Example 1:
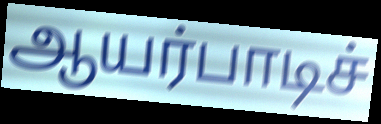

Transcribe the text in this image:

ஆயர்பாடிச்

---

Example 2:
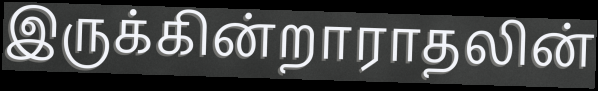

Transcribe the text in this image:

இருக்கின்றாராதலின்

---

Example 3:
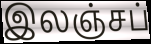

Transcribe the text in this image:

இலஞ்சப்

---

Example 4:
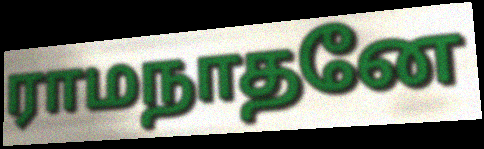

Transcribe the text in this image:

ராமநாதனே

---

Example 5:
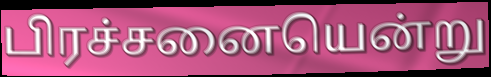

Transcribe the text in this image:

பிரச்சனையென்று